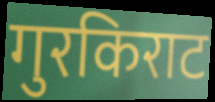
गुरकिराट